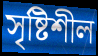
সৃষ্টিশীল